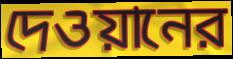
দেওয়ানের